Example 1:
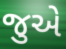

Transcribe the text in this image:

જુએ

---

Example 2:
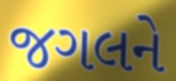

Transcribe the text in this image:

જગલને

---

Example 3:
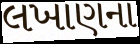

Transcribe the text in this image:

લખાણના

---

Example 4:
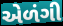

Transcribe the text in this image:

એળંગી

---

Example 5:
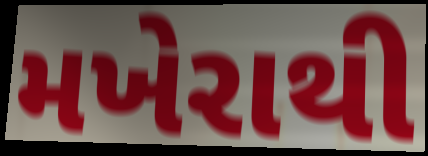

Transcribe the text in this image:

મખેરાથી